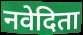
नवेदिता